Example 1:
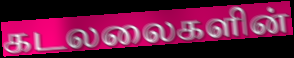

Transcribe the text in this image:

கடலலைகளின்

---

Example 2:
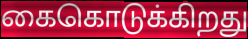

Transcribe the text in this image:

கைகொடுக்கிறது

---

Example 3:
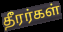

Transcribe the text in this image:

தீரர்கள்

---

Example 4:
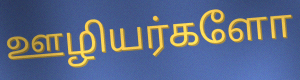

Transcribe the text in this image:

ஊழியர்களோ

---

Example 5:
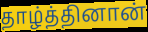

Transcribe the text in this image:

தாழ்த்தினான்